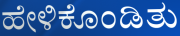
ಹೇಳಿಕೊಂಡಿತು